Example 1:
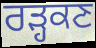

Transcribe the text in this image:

ਰੜ੍ਹਕਣ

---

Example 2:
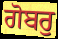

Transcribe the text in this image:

ਗੋਬਰੁ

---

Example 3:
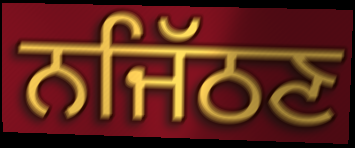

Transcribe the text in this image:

ਨਜਿੱਠਣ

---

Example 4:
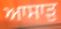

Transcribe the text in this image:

ਆਸਾੜੁ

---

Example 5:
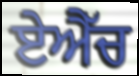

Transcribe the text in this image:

ਏਐੱਚ